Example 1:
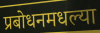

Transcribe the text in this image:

प्रबोधनमधल्या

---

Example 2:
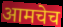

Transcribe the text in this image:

आमचेच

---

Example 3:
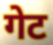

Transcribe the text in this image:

गेट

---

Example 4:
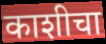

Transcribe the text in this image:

काशीचा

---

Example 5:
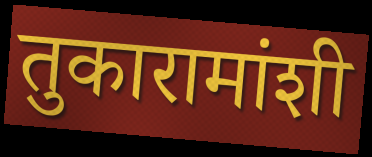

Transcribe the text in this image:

तुकारामांशी